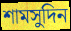
শামসুদিন